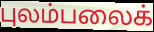
புலம்பலைக்